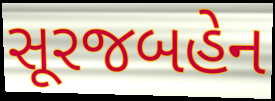
સૂરજબહેન